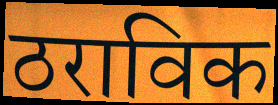
ठराविक